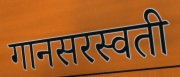
गानसरस्वती